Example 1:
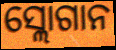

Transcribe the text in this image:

ସ୍ଲୋଗାନ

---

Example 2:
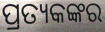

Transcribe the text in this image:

ପ୍ରତ୍ୟକଙ୍କର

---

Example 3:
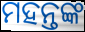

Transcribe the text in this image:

ମହନ୍ତଙ୍କ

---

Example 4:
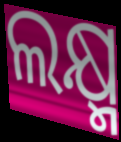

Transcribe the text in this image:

ଲକ୍ଷ୍ମ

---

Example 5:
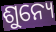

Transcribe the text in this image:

ଶୁନ୍ୟେ